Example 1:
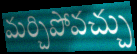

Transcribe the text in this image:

మర్చిపోవచ్చు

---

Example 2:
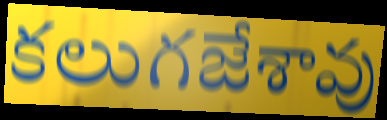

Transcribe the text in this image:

కలుగజేశావు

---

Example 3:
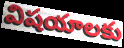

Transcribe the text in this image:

విషయాలకు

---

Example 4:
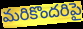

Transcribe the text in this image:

మరికొందరిపై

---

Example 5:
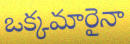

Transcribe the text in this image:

ఒక్కమారైనా